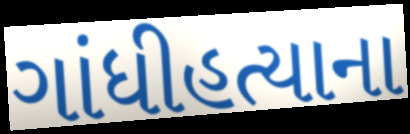
ગાંધીહત્યાના